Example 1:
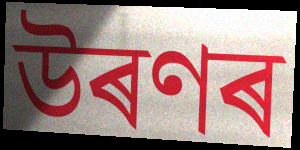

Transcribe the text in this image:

উৰণৰ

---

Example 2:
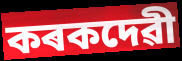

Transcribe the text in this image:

কৰকদেৱী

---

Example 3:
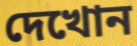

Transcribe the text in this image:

দেখোন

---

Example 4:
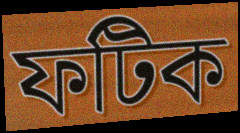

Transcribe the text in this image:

ফটিক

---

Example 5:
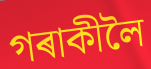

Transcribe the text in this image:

গৰাকীলৈ